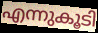
എന്നുകൂടി